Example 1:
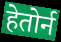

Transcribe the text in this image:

हेतोर्न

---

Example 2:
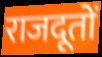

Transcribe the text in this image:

राजदूतों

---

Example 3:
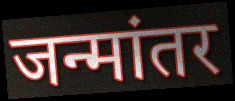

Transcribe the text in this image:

जन्मांतर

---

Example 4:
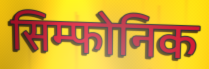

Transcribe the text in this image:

सिम्फोनिक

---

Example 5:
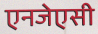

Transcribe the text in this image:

एनजेएसी